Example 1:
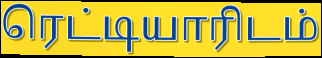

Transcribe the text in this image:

ரெட்டியாரிடம்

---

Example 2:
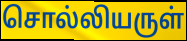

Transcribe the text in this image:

சொல்லியருள்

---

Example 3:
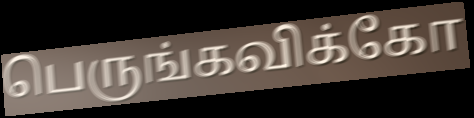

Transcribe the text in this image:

பெருங்கவிக்கோ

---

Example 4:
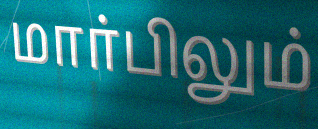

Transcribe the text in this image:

மார்பிலும்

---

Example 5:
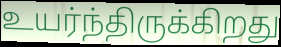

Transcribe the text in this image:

உயர்ந்திருக்கிறது